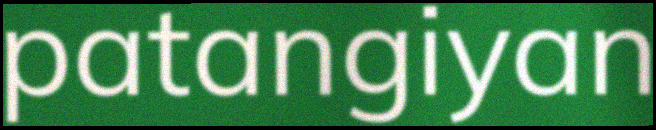
patangiyan